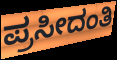
ಪ್ರಸೀದಂತಿ